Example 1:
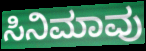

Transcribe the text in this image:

ಸಿನಿಮಾವು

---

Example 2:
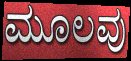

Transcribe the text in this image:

ಮೂಲವು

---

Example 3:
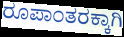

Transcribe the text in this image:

ರೂಪಾಂತರಕ್ಕಾಗಿ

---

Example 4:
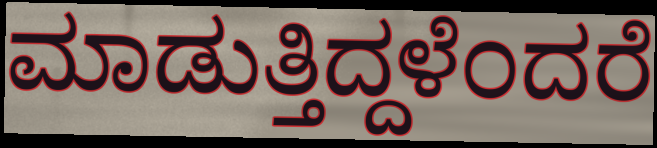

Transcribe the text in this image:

ಮಾಡುತ್ತಿದ್ದಳೆಂದರೆ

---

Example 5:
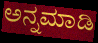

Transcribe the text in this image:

ಅನ್ನಮಾಡಿ